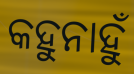
କହୁନାହୁଁ